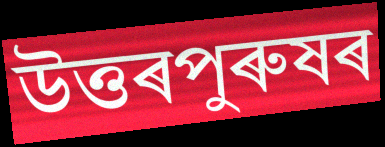
উত্তৰপুৰুষৰ